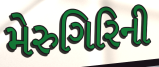
મેરુગિરિની